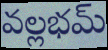
వల్లభమ్